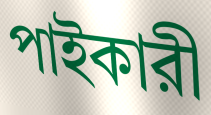
পাইকারী